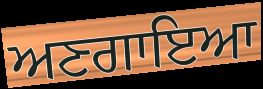
ਅਣਗਾਇਆ